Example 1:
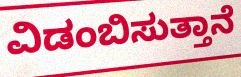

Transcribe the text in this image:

ವಿಡಂಬಿಸುತ್ತಾನೆ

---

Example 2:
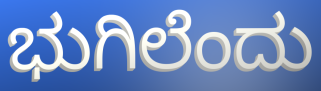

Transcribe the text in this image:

ಭುಗಿಲೆಂದು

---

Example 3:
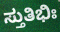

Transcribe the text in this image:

ಸ್ತುತಿಭಿಃ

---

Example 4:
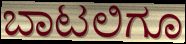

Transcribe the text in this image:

ಬಾಟಲಿಗೂ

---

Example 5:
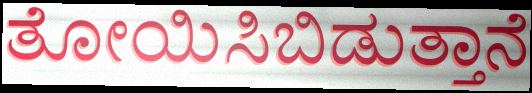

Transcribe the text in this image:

ತೋಯಿಸಿಬಿಡುತ್ತಾನೆ